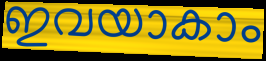
ഇവയാകാം